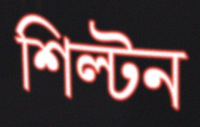
শিল্টন